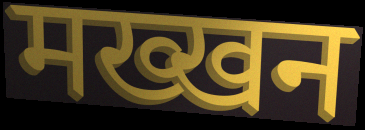
मख्खन